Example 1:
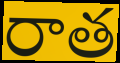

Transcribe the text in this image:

రాత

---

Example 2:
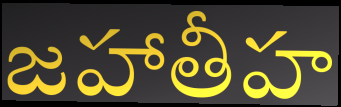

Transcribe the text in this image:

జహాతీహ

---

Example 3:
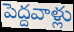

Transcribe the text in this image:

పెద్దవాళ్లు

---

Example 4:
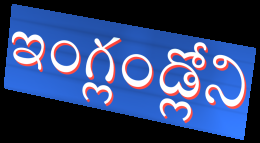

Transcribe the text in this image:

ఇంగ్లండ్లోని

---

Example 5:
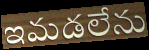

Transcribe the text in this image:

ఇమడలేను